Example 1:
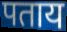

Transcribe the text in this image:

पताय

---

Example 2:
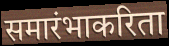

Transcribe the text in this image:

समारंभाकरिता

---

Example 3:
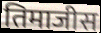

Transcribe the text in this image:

तिमाजीस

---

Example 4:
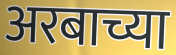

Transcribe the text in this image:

अरबाच्या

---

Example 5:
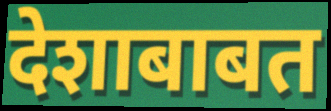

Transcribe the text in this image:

देशाबाबत